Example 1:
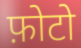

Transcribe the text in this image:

फ़ोटो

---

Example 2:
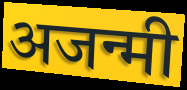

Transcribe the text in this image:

अजन्मी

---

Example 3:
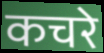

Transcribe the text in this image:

कचरे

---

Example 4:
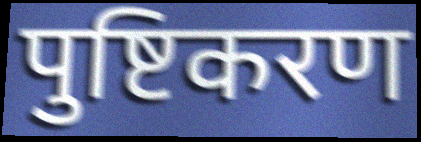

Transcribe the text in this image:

पुष्टिकरण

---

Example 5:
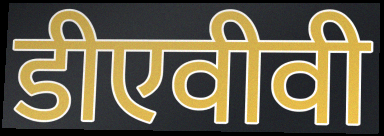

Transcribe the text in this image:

डीएवीवी